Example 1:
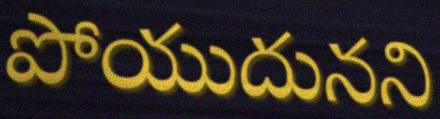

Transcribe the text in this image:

పోయుదునని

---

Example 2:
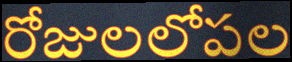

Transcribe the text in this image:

రోజులలోపల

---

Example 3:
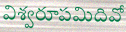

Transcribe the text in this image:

విశ్వరూపమిదివో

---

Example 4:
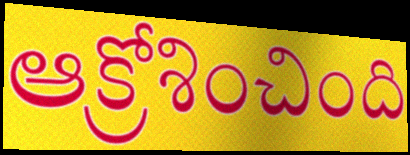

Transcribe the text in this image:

ఆక్రోశించింది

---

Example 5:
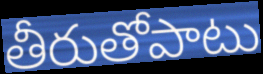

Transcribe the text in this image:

తీరుతోపాటు